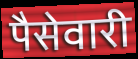
पैसेवारी